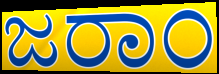
ಜರಾಂ